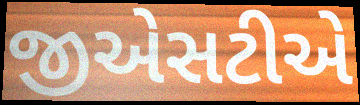
જીએસટીએ